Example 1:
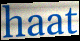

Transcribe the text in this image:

haat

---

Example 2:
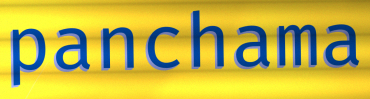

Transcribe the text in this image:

panchama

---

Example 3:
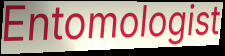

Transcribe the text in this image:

Entomologist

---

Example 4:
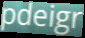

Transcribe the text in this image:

pdeigr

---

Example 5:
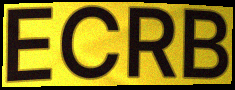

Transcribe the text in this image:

ECRB